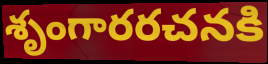
శృంగారరచనకి